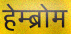
हेम्ब्रोम